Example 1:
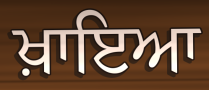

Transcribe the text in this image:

ਖ਼ਾਇਆ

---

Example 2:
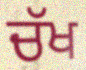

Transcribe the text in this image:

ਚੱਖ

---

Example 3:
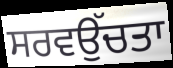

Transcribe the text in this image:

ਸਰਵਉੱਚਤਾ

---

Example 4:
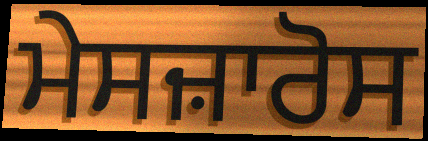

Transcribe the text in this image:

ਮੇਸਜ਼ਾਰੋਸ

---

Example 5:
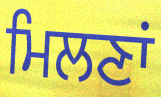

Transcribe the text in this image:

ਮਿਲਣਾਂ